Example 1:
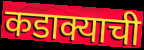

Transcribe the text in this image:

कडाक्याची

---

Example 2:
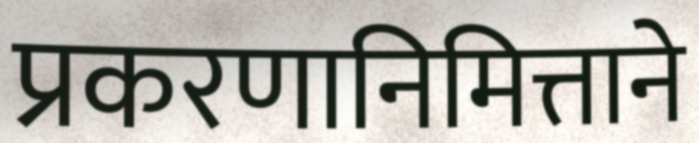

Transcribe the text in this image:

प्रकरणानिमित्ताने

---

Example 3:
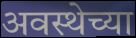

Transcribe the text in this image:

अवस्थेच्या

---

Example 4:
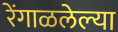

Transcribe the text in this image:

रेंगाळलेल्या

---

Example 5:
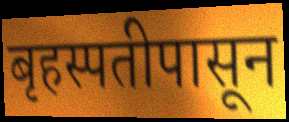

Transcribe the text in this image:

बृहस्पतीपासून